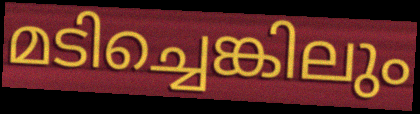
മടിച്ചെങ്കിലും